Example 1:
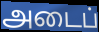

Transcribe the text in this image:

அடைப்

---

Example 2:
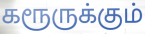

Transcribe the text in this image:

கரூருக்கும்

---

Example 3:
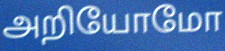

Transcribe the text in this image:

அறியோமோ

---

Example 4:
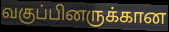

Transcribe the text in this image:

வகுப்பினருக்கான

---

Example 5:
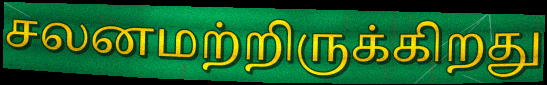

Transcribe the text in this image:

சலனமற்றிருக்கிறது